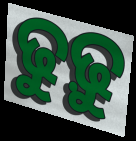
ଢୁଢ଼ୁ